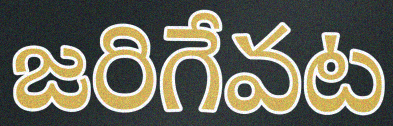
జరిగేవట